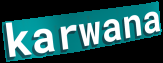
karwana